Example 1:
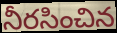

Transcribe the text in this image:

నీరసించిన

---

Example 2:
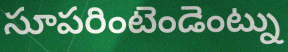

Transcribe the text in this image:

సూపరింటెండెంట్ను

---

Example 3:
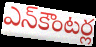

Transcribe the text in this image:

ఎన్‌కౌంటర్ల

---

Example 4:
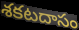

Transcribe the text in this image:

శకటదాసం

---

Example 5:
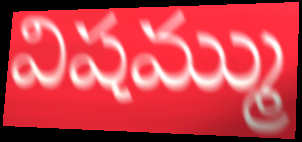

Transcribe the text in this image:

విషమ్ము